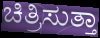
ಚಿತ್ರಿಸುತ್ತಾ